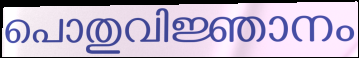
പൊതുവിജ്ഞാനം